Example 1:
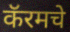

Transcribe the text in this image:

कॅरमचे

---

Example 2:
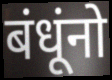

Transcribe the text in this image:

बंधूंनो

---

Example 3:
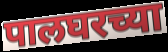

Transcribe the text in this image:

पालघरच्या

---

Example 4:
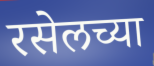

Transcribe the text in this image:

रसेलच्या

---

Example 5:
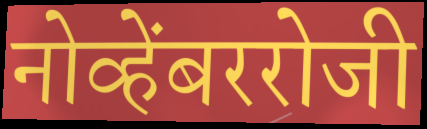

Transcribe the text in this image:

नोव्हेंबररोजी